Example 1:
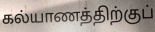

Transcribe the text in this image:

கல்யாணத்திற்குப்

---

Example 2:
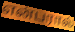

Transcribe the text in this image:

என்பரால்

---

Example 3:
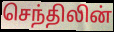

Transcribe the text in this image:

செந்திலின்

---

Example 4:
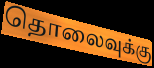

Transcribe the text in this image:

தொலைவுக்கு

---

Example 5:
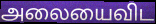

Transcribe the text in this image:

அலையைவிட